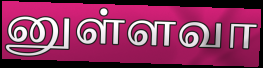
னுள்ளவா